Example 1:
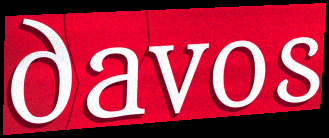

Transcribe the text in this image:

davos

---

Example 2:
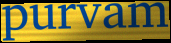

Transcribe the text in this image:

purvam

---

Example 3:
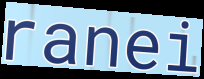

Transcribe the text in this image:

ranei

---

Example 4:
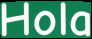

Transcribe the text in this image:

Hola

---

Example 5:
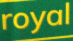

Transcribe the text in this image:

royal